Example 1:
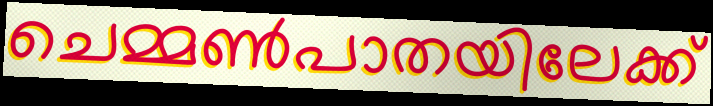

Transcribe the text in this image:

ചെമ്മൺപാതയിലേക്ക്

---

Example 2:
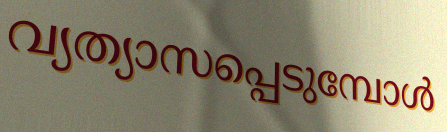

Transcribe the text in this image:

വ്യത്യാസപ്പെടുമ്പോൾ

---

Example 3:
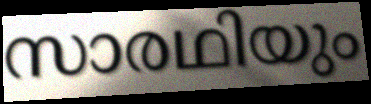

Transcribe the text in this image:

സാരഥിയും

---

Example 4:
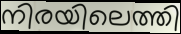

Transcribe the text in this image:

നിരയിലെത്തി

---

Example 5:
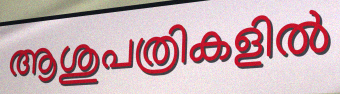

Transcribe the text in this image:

ആശുപത്രികളിൽ